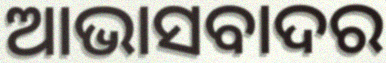
ଆଭାସବାଦର